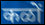
कळों